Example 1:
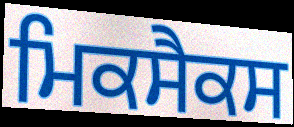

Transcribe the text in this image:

ਮਿਕਸੈਕਸ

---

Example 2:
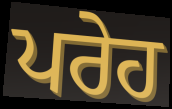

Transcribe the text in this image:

ਪਰੇਹ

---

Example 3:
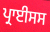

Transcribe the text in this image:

ਪ੍ਰਾਈਸਸ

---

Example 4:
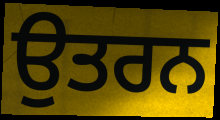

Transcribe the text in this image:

ਉਤਰਨ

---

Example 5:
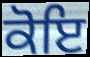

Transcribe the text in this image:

ਕੋਇ